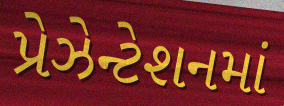
પ્રેઝેન્ટેશનમાં